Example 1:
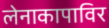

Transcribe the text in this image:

लेनाकापाविर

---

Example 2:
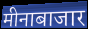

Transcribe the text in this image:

मीनाबाजार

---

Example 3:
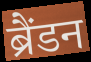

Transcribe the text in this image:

ब्रैंडन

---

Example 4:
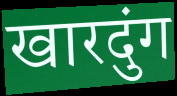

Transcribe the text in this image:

खारदुंग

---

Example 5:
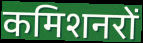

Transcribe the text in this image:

कमिशनरों